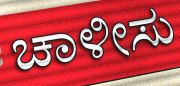
ಚಾಳೀಸು